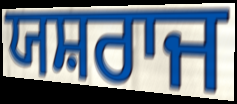
ਯਸ਼ਰਾਜ